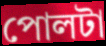
পোলটা